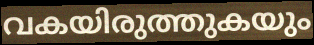
വകയിരുത്തുകയും